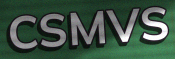
CSMVS